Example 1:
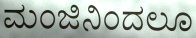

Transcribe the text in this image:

ಮಂಜಿನಿಂದಲೂ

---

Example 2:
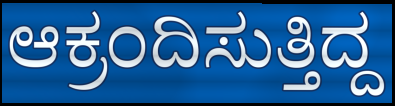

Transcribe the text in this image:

ಆಕ್ರಂದಿಸುತ್ತಿದ್ದ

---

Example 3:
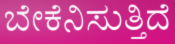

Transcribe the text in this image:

ಬೇಕೆನಿಸುತ್ತಿದೆ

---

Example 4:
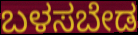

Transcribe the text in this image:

ಬಳಸಬೇಡ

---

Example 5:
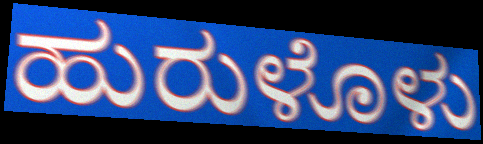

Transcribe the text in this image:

ಹುರುಳೊಳು